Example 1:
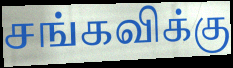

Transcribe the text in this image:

சங்கவிக்கு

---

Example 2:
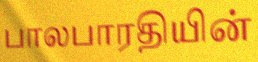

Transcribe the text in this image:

பாலபாரதியின்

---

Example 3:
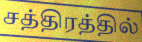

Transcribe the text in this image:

சத்திரத்தில்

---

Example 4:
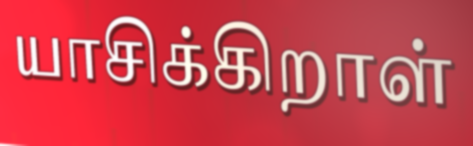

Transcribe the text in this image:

யாசிக்கிறாள்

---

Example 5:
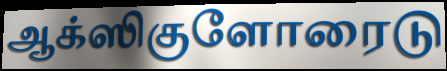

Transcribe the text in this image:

ஆக்ஸிகுளோரைடு